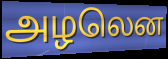
அழலென